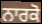
ਨਾਰਕੋ